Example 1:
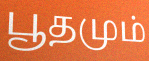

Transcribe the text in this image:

பூதமும்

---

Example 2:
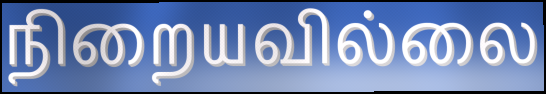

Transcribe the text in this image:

நிறையவில்லை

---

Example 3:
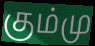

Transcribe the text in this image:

கும்மு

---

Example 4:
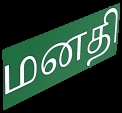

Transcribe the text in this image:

மனதி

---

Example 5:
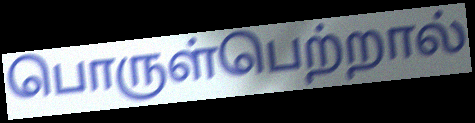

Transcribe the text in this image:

பொருள்பெற்றால்